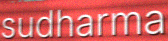
sudharma